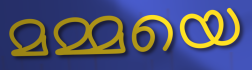
മമ്മയെ